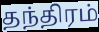
தந்திரம்